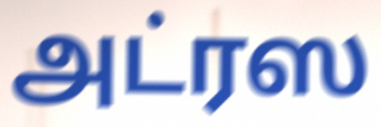
அட்ரஸ